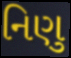
નિણુ